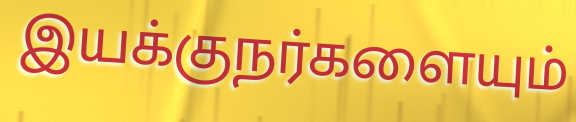
இயக்குநர்களையும்